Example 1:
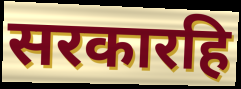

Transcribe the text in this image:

सरकारहि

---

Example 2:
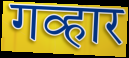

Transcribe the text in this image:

गव्हार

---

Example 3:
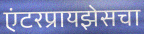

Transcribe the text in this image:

एंटरप्रायझेसचा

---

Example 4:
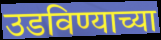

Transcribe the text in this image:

उडविण्याच्या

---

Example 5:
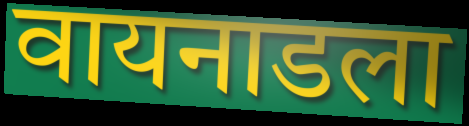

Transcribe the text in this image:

वायनाडला